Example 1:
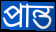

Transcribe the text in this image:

প্রান্ত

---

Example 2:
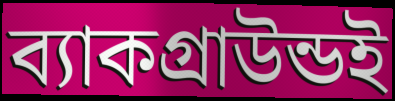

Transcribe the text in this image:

ব্যাকগ্রাউন্ডই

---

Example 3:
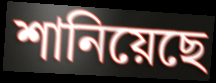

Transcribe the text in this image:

শানিয়েছে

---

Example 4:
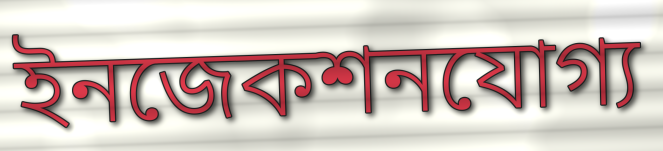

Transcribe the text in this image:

ইনজেকশনযোগ্য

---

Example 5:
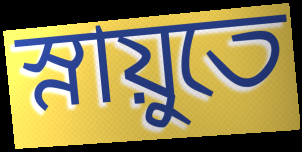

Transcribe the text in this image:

স্নায়ুতে